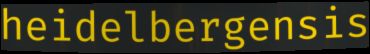
heidelbergensis